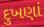
દુખણાં